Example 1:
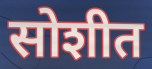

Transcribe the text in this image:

सोशीत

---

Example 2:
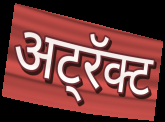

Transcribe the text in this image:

अट्रॅक्ट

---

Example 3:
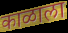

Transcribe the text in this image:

काळाला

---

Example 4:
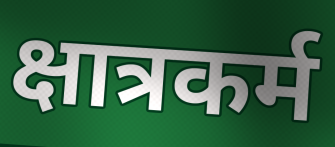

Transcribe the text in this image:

क्षात्रकर्म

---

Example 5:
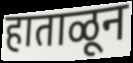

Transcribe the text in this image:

हाताळून